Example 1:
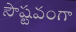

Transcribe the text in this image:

సౌష్టవంగా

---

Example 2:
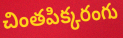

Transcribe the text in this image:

చింతపిక్కరంగు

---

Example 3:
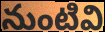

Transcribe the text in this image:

నుంటివి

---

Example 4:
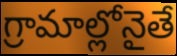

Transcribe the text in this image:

గ్రామాల్లోనైతే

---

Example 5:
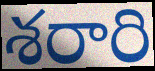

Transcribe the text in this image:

శరారి